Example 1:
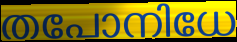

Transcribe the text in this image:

തപോനിധേ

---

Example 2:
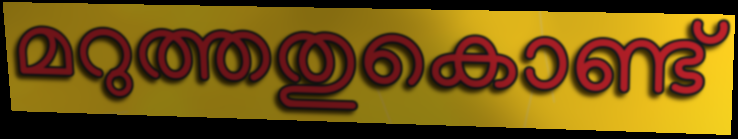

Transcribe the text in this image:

മറുത്തതുകൊണ്ട്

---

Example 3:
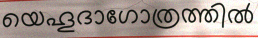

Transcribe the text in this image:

യെഹൂദാഗോത്രത്തിൽ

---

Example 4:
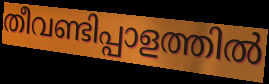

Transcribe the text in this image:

തീവണ്ടിപ്പാളത്തിൽ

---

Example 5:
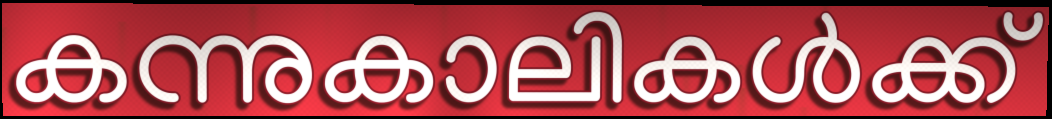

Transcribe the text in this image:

കന്നുകാലികൾക്ക്